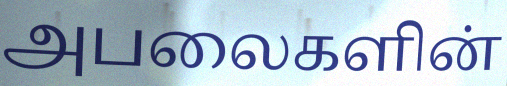
அபலைகளின்